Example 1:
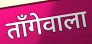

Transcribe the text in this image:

ताँगेवाला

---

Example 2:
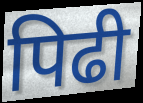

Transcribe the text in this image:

पिढी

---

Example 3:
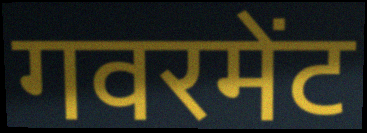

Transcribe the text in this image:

गवरमेंट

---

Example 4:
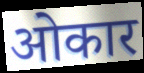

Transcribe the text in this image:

ओकार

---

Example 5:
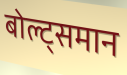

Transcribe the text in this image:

बोल्ट्समान